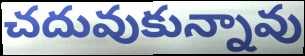
చదువుకున్నావు